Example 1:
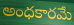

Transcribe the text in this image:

అంధకారమే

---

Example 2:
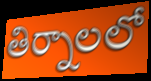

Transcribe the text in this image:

తిర్నాలలో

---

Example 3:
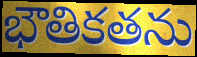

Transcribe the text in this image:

భౌతికతను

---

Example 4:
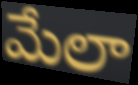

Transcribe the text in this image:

మేలా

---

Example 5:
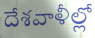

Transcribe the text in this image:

దేశవాళీల్లో